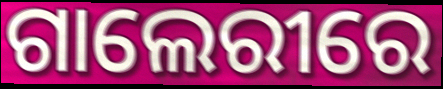
ଗାଲେରୀରେ